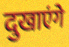
दुखाएंगे